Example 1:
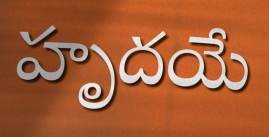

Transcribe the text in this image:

హృదయే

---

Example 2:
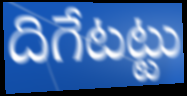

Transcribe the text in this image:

దిగేటట్టు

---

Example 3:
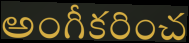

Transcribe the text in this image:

అంగీకరించ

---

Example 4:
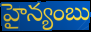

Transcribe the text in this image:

హైన్యంబు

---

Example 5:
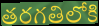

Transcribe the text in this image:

తరగతిలోకి